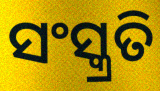
ସଂସ୍କ୍ରତି